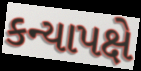
કન્યાપક્ષે